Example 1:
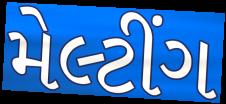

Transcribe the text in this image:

મેલ્ટીંગ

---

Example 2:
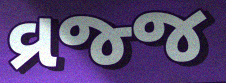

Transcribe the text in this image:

વ્રજ્જ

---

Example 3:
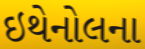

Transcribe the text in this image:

ઇથેનોલના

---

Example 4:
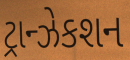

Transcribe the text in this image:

ટ્રાન્ઝેકશન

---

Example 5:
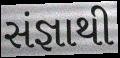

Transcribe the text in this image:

સંજ્ઞાથી